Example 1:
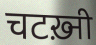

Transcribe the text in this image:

चटख़्नी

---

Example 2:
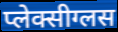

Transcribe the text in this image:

प्लेक्सीग्लस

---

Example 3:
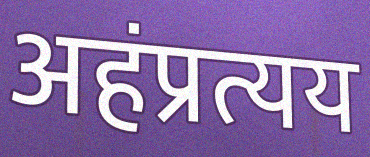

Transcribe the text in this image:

अहंप्रत्यय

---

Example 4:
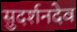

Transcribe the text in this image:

सुदर्शनदेव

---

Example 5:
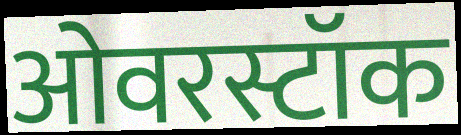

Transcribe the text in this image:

ओवरस्टॉक